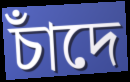
চাঁদে